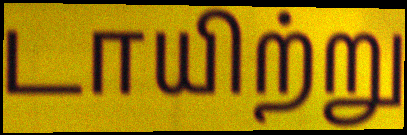
டாயிற்று